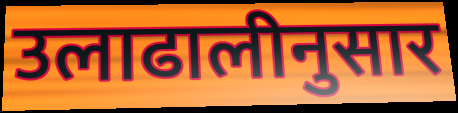
उलाढालीनुसार